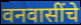
वनवासींचे